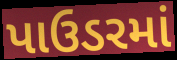
પાઉડરમાં